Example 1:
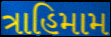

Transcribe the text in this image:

ત્રાહિમામ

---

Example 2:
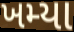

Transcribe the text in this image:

ખમ્યા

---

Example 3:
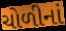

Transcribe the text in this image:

ચોળીનાં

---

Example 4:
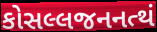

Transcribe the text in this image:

કોસલ્લજનનત્થં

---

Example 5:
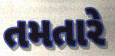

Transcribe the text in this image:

તમતારે